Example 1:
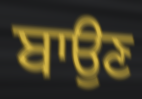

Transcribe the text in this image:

ਬਾਉਣ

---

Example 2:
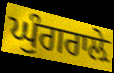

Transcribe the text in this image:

ਘੁੰਗਰਾਲ਼ੇ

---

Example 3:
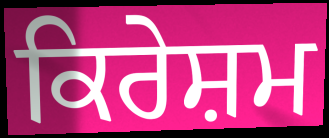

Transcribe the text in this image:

ਕਿਰੇਸ਼ਮ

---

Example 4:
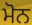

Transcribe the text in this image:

ਮੋਨ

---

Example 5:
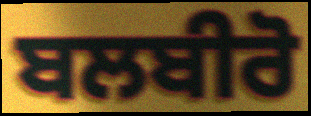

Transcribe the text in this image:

ਬਲਬੀਰੋ